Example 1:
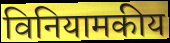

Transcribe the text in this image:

विनियामकीय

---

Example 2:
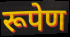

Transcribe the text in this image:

रूपेण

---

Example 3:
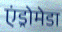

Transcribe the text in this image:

एंड्रोमेडा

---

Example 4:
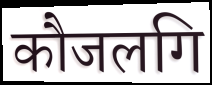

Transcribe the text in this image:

कौजलगि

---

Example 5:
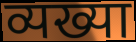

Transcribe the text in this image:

व्यख्या